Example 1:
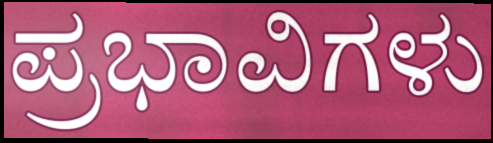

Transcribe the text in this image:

ಪ್ರಭಾವಿಗಳು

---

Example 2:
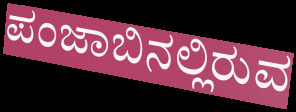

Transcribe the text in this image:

ಪಂಜಾಬಿನಲ್ಲಿರುವ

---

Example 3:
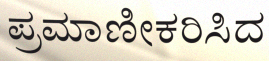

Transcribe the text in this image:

ಪ್ರಮಾಣೀಕರಿಸಿದ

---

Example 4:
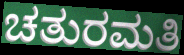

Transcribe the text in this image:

ಚತುರಮತಿ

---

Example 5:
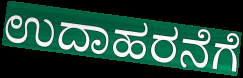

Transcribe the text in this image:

ಉದಾಹರನೆಗೆ